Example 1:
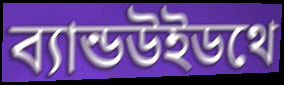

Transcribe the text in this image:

ব্যান্ডউইডথে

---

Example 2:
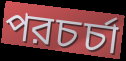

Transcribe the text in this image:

পরচর্চা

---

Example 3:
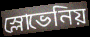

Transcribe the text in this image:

স্লোভেনিয়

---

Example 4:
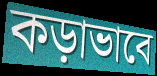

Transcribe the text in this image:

কড়াভাবে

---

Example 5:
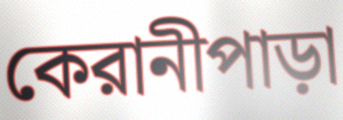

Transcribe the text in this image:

কেরানীপাড়া